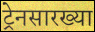
ट्रेनसारख्या